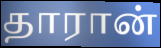
தாரான்